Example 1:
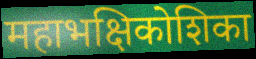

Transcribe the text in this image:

महाभक्षिकोशिका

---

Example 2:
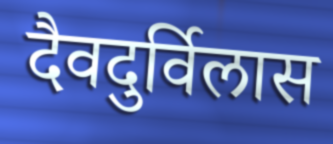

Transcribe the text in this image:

दैवदुर्विलास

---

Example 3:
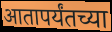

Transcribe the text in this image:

आतापर्यंतच्या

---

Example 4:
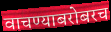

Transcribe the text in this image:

वाचण्याबरोबरच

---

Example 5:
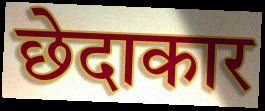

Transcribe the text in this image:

छेदाकार